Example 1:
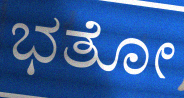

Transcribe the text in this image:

ಭತೋ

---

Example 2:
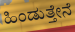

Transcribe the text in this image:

ಹಿಂಡುತ್ತೇನೆ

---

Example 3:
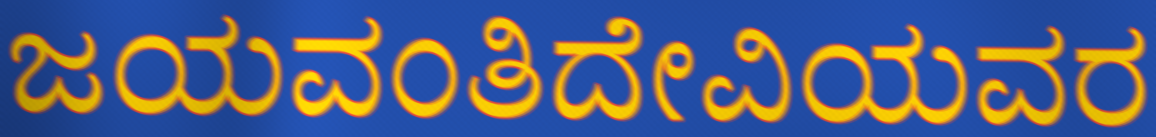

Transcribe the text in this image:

ಜಯವಂತಿದೇವಿಯವರ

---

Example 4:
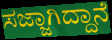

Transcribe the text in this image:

ಸಜ್ಜಾಗಿದ್ದಾನೆ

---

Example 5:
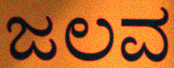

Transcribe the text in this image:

ಜಲವ